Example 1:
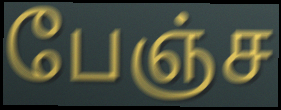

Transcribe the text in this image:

பேஞ்ச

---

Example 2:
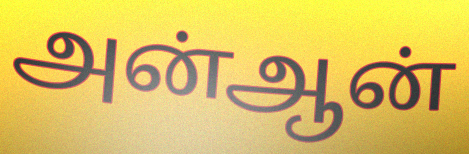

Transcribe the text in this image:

அன்ஆன்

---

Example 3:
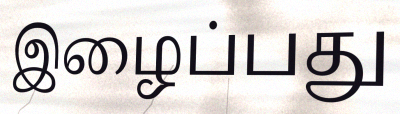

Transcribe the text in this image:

இழைப்பது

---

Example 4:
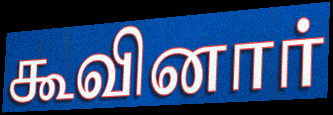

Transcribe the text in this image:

கூவினார்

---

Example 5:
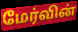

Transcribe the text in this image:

மேர்வின்